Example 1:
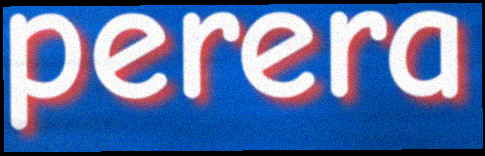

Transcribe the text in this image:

perera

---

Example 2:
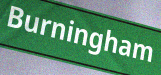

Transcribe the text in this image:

Burningham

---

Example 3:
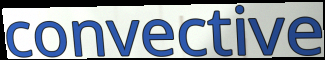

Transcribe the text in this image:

convective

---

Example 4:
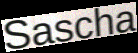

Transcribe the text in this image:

Sascha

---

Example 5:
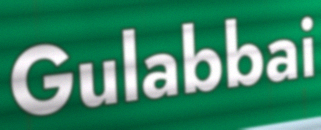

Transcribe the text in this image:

Gulabbai